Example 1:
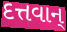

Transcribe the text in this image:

દત્તવાન્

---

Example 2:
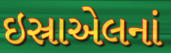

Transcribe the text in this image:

ઇસ્રાએલનાં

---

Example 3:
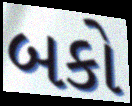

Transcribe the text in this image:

બકો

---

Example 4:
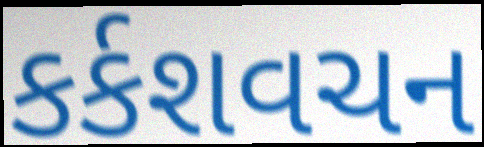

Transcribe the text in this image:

કર્કશવચન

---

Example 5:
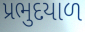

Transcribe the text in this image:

પ્રભુદયાળ